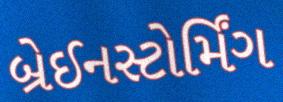
બ્રેઈનસ્ટોર્મિંગ